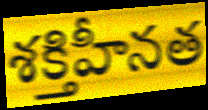
శక్తిహీనత